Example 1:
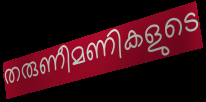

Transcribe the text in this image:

തരുണീമണികളുടെ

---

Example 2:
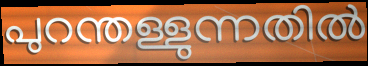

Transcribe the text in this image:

പുറന്തള്ളുന്നതിൽ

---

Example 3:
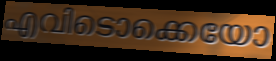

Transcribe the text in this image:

എവിടൊക്കെയോ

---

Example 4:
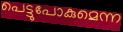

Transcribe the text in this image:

പെട്ടുപോകുമെന്ന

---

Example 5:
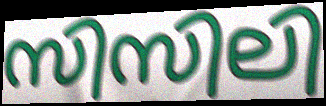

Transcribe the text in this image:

സിസിലി